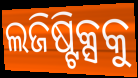
ଲଜିଷ୍ଟିକ୍ସକୁ